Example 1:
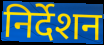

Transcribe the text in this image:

निर्देशन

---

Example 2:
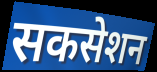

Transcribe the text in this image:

सकसेशन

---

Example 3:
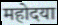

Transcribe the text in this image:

महोदया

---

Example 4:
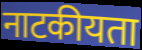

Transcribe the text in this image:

नाटकीयता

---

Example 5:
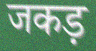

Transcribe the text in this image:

जकड़